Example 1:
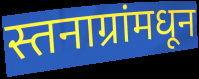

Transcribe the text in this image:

स्तनाग्रांमधून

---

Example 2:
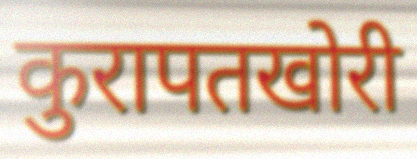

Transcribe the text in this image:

कुरापतखोरी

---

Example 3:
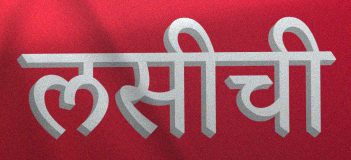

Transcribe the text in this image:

लसीची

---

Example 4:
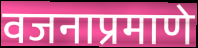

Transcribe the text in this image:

वजनाप्रमाणे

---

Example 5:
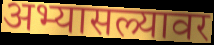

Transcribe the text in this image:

अभ्यासल्यावर